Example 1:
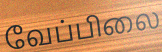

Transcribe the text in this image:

வேப்பிலை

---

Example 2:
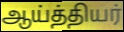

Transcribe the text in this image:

ஆய்த்தியர்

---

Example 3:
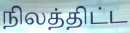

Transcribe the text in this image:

நிலத்திட்ட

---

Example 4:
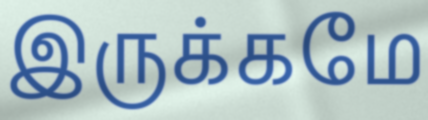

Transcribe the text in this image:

இருக்கமே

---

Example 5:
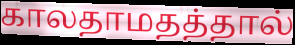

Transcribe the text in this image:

காலதாமதத்தால்